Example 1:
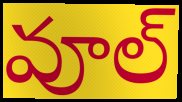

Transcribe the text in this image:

వూల్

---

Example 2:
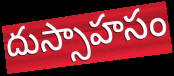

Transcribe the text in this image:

దుస్సాహసం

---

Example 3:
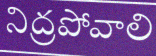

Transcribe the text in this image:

నిద్రపోవాలి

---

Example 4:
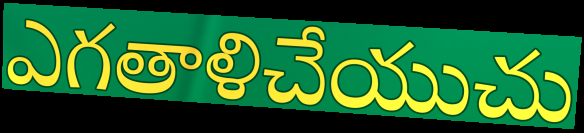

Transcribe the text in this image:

ఎగతాళిచేయుచు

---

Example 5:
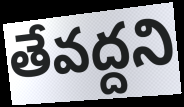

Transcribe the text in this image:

తేవద్దని